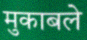
मुकाबले